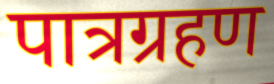
पात्रग्रहण